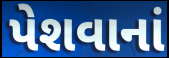
પેશવાનાં